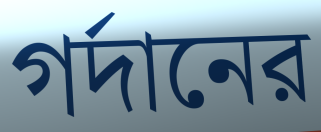
গর্দানের